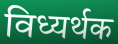
विध्यर्थक